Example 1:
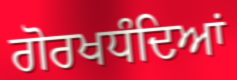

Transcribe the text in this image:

ਗੋਰਖਧੰਦਿਆਂ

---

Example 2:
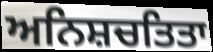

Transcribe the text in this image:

ਅਨਿਸ਼ਚਤਿਤਾ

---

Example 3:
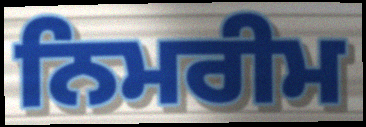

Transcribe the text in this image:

ਨਿਮਰੀਮ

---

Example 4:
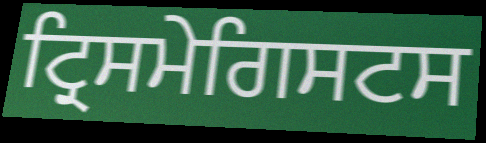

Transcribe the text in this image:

ਟ੍ਰਿਸਮੇਗਿਸਟਸ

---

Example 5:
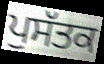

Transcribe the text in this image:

ਪੁਸੱਤਕ